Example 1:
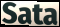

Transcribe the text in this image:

Sata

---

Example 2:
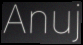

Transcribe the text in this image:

Anuj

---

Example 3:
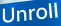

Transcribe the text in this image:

Unroll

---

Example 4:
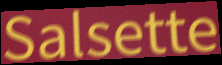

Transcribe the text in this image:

Salsette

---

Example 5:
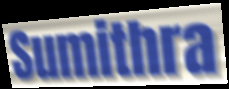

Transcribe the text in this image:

Sumithra